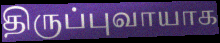
திருப்புவாயாக